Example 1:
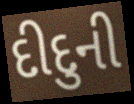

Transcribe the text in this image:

દીદુની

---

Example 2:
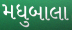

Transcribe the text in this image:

મધુબાલા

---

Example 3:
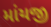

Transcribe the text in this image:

માંયજી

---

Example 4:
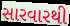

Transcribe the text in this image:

સારવારથી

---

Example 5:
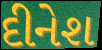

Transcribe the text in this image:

દીનેશ